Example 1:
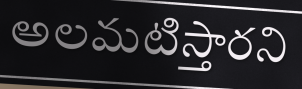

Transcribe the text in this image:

అలమటిస్తారని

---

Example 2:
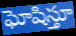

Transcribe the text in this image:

ఘోషిస్తూ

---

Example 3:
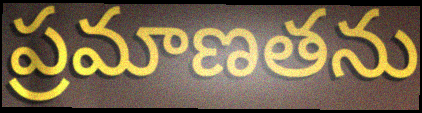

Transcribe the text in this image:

ప్రమాణతను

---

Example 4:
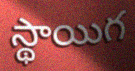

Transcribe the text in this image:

స్థాయిగ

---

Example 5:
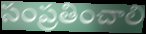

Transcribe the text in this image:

సంప్రతించాలి